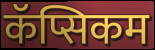
कॅप्सिकम